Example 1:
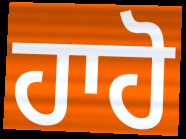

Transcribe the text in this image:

ਹਾਹੋ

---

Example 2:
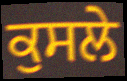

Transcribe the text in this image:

ਕੁਸਲੇ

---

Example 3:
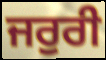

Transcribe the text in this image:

ਜਰੁਰੀ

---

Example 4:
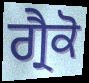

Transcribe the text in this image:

ਗ੍ਰੈਕੋ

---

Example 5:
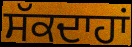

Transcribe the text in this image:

ਸੱਕਦਾਹਾਂ